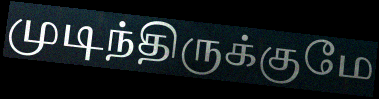
முடிந்திருக்குமே